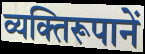
व्यक्तिरूपानें